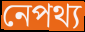
নেপথ্য